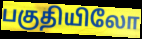
பகுதியிலோ